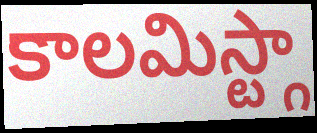
కాలమిస్ట్గా